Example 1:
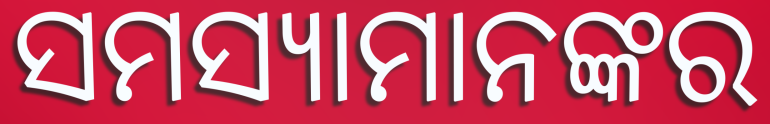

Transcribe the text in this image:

ସମସ୍ୟାମାନଙ୍କର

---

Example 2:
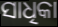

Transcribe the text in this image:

ସାଧିକା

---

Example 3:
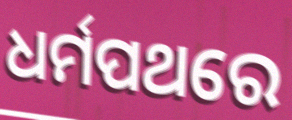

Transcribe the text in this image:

ଧର୍ମପଥରେ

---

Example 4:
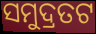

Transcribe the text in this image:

ସମୁଦ୍ରତଟ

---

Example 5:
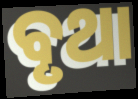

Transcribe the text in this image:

ବୃଥା